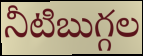
నీటిబుగ్గల